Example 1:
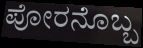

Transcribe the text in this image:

ಪೋರನೊಬ್ಬ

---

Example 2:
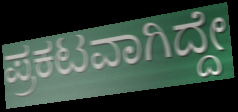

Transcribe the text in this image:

ಪ್ರಕಟವಾಗಿದ್ದೇ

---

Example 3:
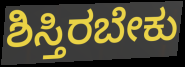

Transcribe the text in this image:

ಶಿಸ್ತಿರಬೇಕು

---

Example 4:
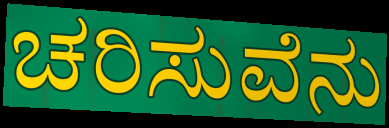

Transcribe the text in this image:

ಚರಿಸುವೆನು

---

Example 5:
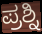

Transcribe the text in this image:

ಪ್ರಶ್ನಿ